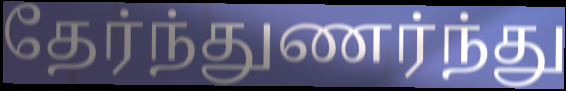
தேர்ந்துணர்ந்து